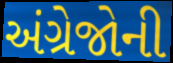
અંગ્રેજોની